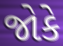
જોકે